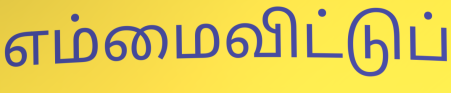
எம்மைவிட்டுப்